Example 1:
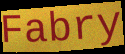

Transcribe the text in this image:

Fabry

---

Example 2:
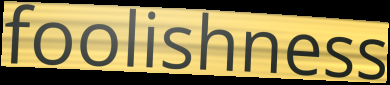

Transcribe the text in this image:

foolishness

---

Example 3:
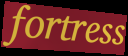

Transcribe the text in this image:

fortress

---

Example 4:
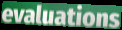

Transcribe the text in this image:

evaluations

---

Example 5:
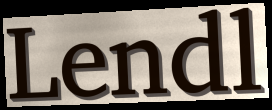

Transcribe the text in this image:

Lendl